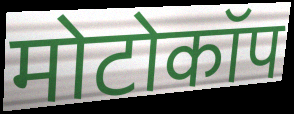
मोटोकॉप